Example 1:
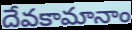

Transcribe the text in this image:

దేవకామానాం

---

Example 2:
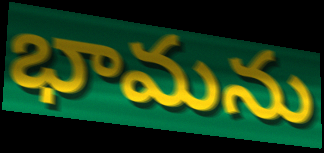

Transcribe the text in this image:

భామను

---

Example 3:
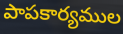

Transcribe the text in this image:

పాపకార్యముల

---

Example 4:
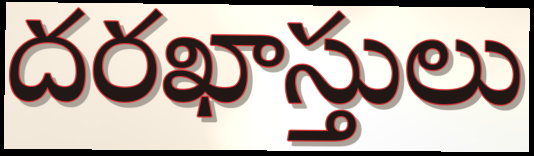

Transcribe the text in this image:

దరఖాస్తులు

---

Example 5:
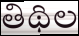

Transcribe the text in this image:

తిథిల